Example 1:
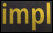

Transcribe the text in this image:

impl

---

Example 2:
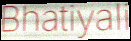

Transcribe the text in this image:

Bhatiyali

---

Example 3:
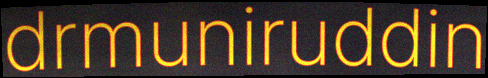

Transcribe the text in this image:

drmuniruddin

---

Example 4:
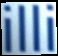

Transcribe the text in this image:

illi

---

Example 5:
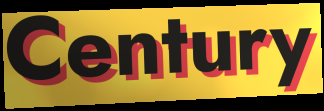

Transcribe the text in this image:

Century